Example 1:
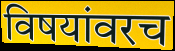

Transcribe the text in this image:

विषयांवरच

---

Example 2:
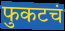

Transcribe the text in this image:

फुकटचं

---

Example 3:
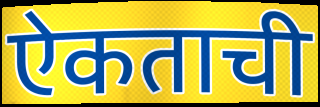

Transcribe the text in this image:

ऐकताची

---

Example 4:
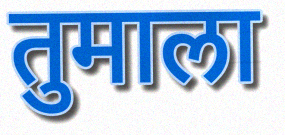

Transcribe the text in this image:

तुमाला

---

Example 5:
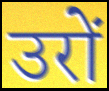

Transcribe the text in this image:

उरों